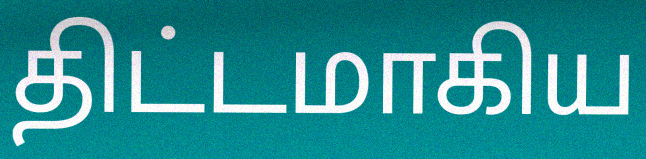
திட்டமாகிய